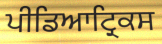
ਪੀਡਿਆਟ੍ਰਿਕਸ